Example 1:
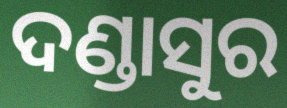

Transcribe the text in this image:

ଦଣ୍ଡାସୁର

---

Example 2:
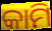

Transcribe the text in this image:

କାମି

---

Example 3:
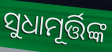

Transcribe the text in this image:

ସୁଧାମୂର୍ତ୍ତିଙ୍କ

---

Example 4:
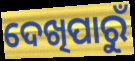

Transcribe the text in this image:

ଦେଖିପାରୁଁ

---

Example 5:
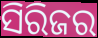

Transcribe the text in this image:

ସିରିଜର